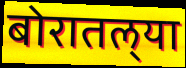
बोरातल्या